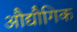
औद्यौगिक